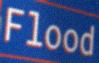
Flood